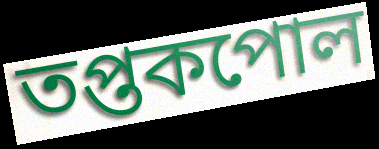
তপ্তকপোল